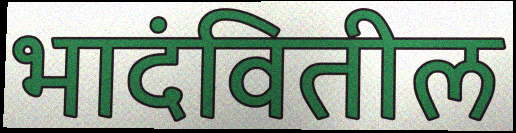
भादंवितील